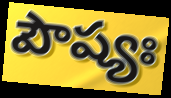
పౌష్యః